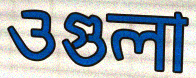
ওগুলা